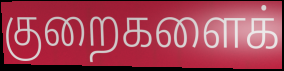
குறைகளைக்